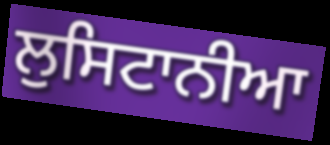
ਲੁਸਿਟਾਨੀਆ